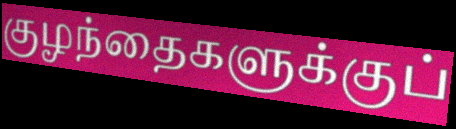
குழந்தைகளுக்குப்